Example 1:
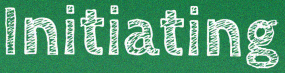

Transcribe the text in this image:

Initiating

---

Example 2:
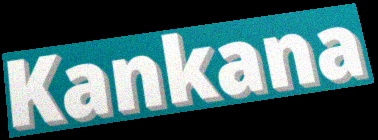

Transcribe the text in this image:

Kankana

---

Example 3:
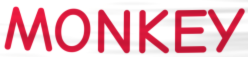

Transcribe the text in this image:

MONKEY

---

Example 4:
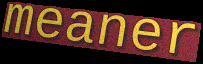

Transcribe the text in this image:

meaner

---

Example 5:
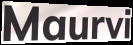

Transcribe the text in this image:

Maurvi